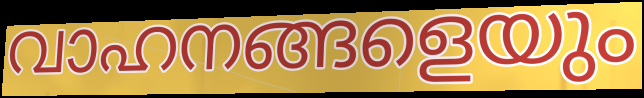
വാഹനങ്ങളെയും